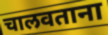
चालवताना